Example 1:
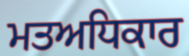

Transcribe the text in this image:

ਮਤਅਧਿਕਾਰ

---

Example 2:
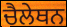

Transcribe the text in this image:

ਚੈਲੇਥਨ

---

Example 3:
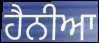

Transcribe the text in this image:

ਹੈਨੀਆ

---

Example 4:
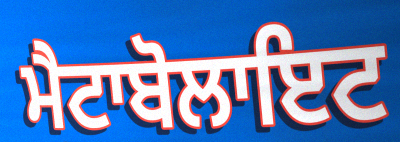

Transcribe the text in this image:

ਮੈਟਾਬੋਲਾਇਟ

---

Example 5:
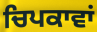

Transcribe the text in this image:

ਚਿਪਕਾਵਾਂ